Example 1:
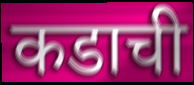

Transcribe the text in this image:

कडाची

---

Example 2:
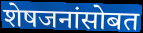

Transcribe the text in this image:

शेषजनांसोबत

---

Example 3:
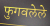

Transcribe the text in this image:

फुगवलेले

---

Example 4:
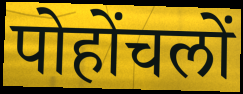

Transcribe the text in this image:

पोहोंचलों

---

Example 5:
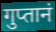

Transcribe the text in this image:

गुप्तानं